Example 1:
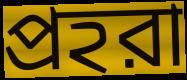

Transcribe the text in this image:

প্রহরা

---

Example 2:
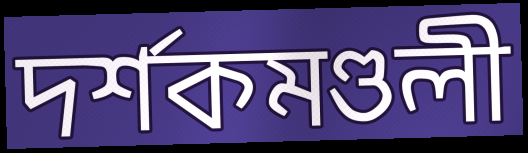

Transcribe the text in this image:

দর্শকমণ্ডলী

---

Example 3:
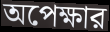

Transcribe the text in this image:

অপেক্ষার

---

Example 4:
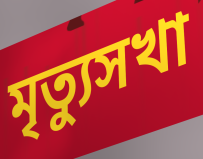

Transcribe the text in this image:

মৃত্যুসখা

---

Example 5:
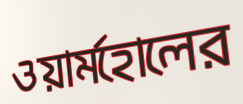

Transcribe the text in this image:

ওয়ার্মহোলের